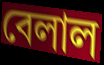
বেলাল